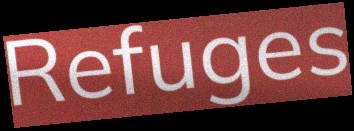
Refuges